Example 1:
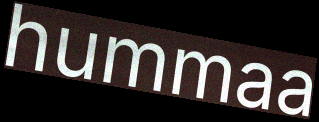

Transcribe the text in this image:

hummaa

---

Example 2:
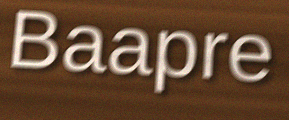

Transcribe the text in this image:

Baapre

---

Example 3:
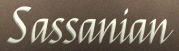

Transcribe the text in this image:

Sassanian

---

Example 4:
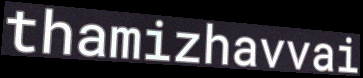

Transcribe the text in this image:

thamizhavvai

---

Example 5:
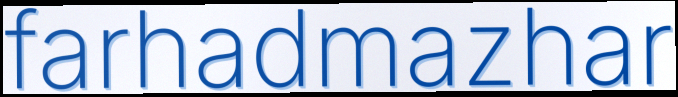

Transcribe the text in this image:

farhadmazhar